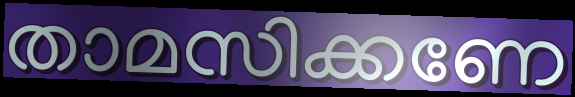
താമസിക്കണേ